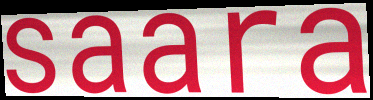
saara